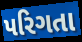
પરિગતા